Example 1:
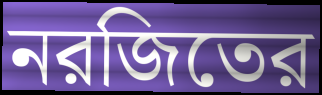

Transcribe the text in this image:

নরজিতের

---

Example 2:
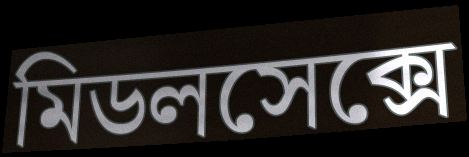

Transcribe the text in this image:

মিডলসেক্সে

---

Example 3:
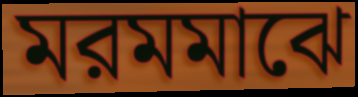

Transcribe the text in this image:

মরমমাঝে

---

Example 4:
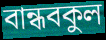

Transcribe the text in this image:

বান্ধবকুল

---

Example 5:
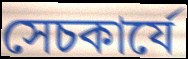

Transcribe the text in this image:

সেচকার্যে